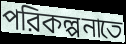
পরিকল্পনাতে